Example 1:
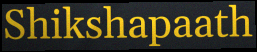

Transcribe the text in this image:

Shikshapaath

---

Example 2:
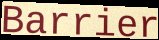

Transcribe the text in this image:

Barrier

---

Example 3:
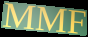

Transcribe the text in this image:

MMF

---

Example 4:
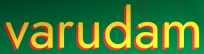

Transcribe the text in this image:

varudam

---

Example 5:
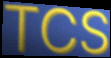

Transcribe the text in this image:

TCS